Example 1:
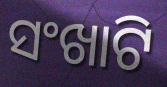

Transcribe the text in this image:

ସଂଖାଟି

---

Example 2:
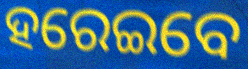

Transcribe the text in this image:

ହରେଇବେ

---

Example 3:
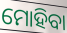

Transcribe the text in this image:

ମୋହିବା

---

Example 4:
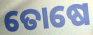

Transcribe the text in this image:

ତୋଷେ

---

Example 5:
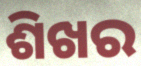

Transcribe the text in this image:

ଶିଖର